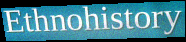
Ethnohistory